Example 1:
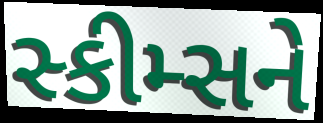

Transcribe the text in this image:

સ્કીમ્સને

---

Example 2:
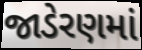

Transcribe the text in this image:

જાડેરણમાં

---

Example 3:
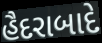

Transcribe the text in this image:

હૈદરાબાદે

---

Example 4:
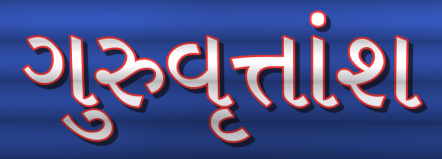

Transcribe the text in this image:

ગુરુવૃત્તાંશ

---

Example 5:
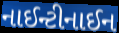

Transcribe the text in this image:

નાઈન્ટીનાઈન